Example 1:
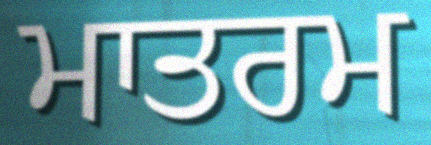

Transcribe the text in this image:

ਮਾਤਰਮ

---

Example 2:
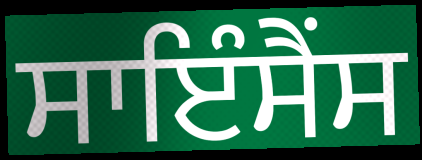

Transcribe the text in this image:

ਸਾਇੰਸੈਂਸ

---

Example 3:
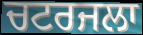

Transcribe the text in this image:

ਚਟਰਜਲਾ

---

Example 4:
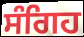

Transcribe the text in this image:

ਸੰਗਿਹ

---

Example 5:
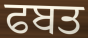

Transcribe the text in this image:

ਫਬਤ